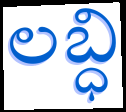
లబ్ధి